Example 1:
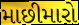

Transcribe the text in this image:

માછીમારો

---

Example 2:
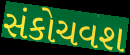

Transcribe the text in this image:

સંકોચવશ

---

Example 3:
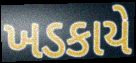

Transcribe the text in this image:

ખડકાયે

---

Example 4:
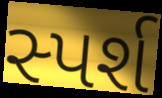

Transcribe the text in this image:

સ્પર્શ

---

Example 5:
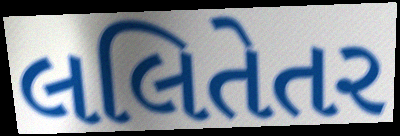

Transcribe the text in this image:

લલિતેતર